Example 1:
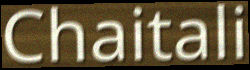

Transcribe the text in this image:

Chaitali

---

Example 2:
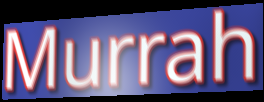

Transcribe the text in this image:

Murrah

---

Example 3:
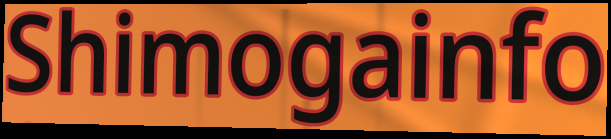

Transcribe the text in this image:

Shimogainfo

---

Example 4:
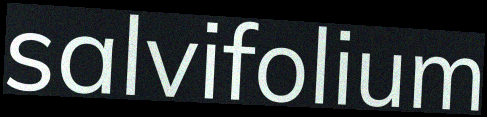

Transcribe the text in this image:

salvifolium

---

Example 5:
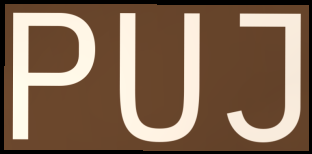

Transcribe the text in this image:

PUJ